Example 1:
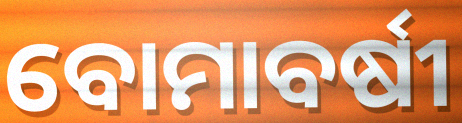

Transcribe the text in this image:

ବୋମାବର୍ଷୀ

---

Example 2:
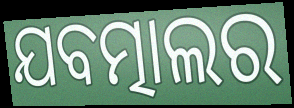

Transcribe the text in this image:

ଯବତ୍ମାଲର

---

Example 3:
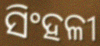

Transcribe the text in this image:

ସିଂହଳୀ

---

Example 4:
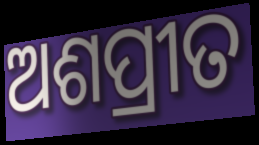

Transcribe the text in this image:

ଅଶପ୍ରୀତ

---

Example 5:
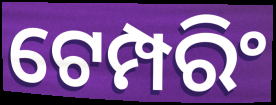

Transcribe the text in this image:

ଟେମ୍ପରିଂ